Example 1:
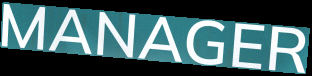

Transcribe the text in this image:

MANAGER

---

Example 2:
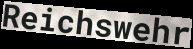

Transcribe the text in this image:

Reichswehr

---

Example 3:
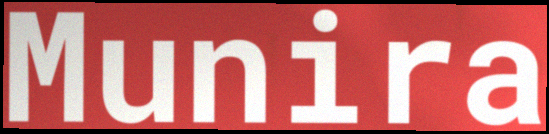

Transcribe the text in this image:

Munira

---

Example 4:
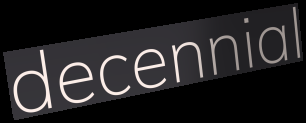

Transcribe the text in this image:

decennial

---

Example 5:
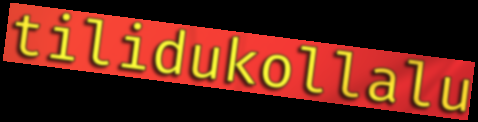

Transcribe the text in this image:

tilidukollalu